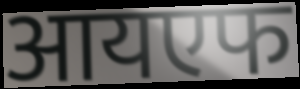
आयएफ